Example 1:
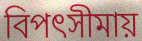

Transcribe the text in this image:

বিপৎসীমায়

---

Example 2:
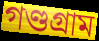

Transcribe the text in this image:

গণ্ডগ্রাম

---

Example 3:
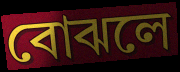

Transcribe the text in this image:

বোঝলে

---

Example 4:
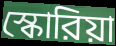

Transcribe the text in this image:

স্কোরিয়া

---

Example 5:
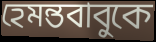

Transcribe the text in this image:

হেমন্তবাবুকে